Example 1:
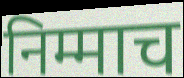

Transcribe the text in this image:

निम्माच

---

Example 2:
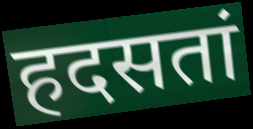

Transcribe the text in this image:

हदसतां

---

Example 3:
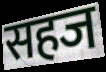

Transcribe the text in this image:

सहज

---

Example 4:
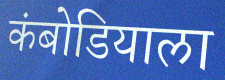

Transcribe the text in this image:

कंबोडियाला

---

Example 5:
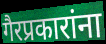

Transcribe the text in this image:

गैरप्रकारांना